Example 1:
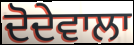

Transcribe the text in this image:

ਦੋਦੇਵਾਲਾ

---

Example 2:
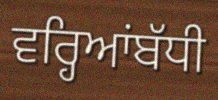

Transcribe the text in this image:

ਵਰ੍ਹਿਆਂਬੱਧੀ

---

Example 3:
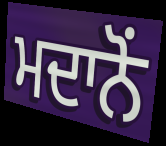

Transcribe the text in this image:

ਮਦਾਨੋਂ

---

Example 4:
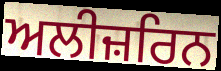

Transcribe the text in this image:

ਅਲੀਜ਼ਰਿਨ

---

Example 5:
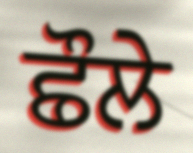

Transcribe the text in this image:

ਛੌਲੇ